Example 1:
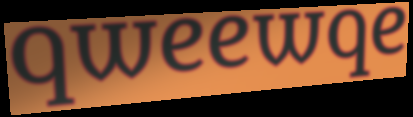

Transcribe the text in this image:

qweewqe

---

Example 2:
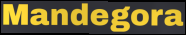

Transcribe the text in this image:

Mandegora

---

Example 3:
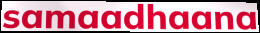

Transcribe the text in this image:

samaadhaana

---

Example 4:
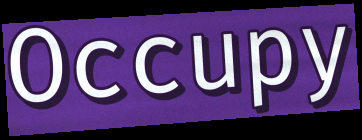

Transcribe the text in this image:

Occupy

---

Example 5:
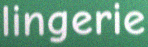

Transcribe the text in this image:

lingerie